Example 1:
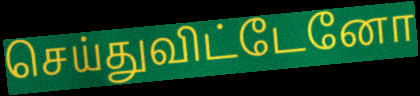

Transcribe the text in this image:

செய்துவிட்டேனோ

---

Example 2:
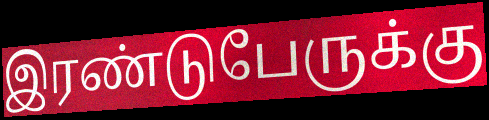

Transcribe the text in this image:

இரண்டுபேருக்கு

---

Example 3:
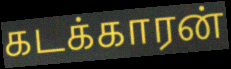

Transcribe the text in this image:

கடக்காரன்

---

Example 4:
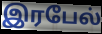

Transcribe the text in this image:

இரபேல்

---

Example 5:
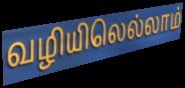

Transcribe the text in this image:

வழியிலெல்லாம்